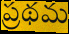
ప్రథమ